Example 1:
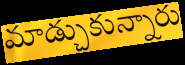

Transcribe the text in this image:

మాడ్చుకున్నారు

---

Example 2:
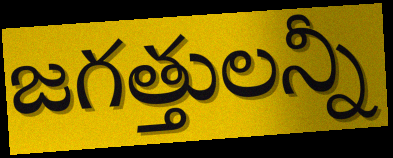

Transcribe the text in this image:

జగత్తులన్నీ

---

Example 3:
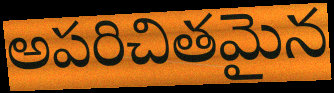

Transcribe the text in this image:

అపరిచితమైన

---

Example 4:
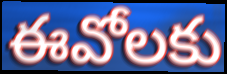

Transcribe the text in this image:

ఈవోలకు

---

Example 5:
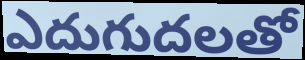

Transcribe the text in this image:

ఎదుగుదలతో